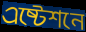
এষ্টেশনে